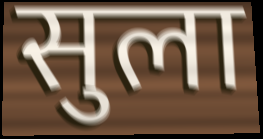
सुला